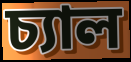
চ্যাল